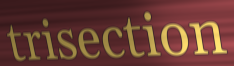
trisection